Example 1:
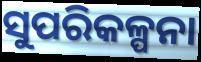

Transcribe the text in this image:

ସୁପରିକଳ୍ପନା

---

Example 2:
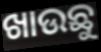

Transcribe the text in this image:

ଖାଉଛୁ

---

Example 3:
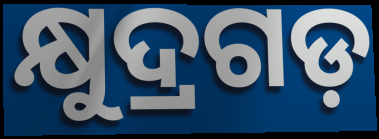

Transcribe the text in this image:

କ୍ଷୁଦ୍ରଗଡ଼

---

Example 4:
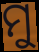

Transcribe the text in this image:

ମୁ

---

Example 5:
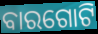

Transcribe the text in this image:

ବାରଗୋଟି